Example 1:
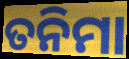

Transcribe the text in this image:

ତନିମା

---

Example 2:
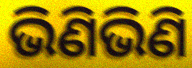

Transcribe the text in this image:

ଭିଣିଭିଣି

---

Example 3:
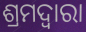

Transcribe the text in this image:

ଶ୍ରମଦ୍ୱାରା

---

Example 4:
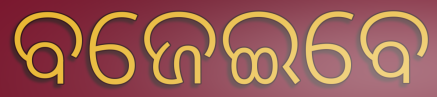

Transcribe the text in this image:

ବଜେଇବେ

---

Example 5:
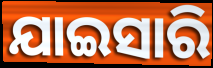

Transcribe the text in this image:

ଯାଇସାରି